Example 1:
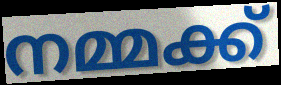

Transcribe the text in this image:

നമ്മക്ക്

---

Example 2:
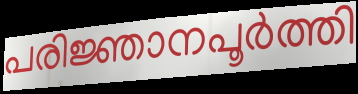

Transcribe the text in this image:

പരിജ്ഞാനപൂർത്തി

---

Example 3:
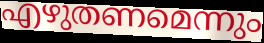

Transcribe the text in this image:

എഴുതണമെന്നും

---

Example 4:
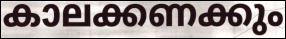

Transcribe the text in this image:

കാലക്കണക്കും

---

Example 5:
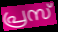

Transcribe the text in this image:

പ്രസ്